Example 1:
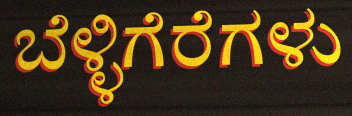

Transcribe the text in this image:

ಬೆಳ್ಳಿಗೆರೆಗಳು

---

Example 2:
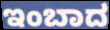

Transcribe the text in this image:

ಇಂಬಾದ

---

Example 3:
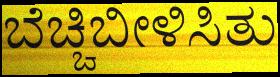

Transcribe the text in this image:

ಬೆಚ್ಚಿಬೀಳಿಸಿತು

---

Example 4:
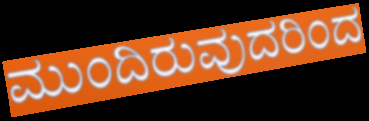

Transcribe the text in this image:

ಮುಂದಿರುವುದರಿಂದ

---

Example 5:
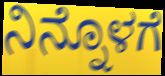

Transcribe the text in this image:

ನಿನ್ನೊಳಗೆ